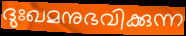
ദുഃഖമനുഭവിക്കുന്ന